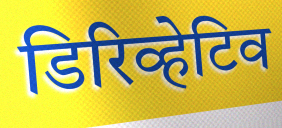
डिरिव्हेटिव